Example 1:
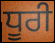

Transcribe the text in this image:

ਧੂਰੀ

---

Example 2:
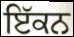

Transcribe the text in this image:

ਇੱਕਨ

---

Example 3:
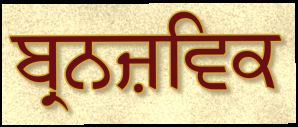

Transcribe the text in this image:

ਬ੍ਰਨਜ਼ਵਿਕ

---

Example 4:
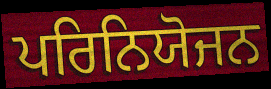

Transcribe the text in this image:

ਪਰਿਨਿਯੋਜਨ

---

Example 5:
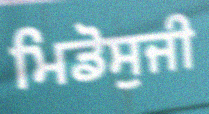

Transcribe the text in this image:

ਮਿਡੋਸੁਜੀ